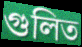
গুলিত